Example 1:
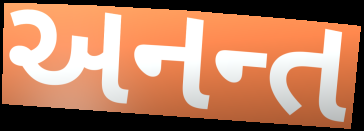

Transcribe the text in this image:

અનન્ત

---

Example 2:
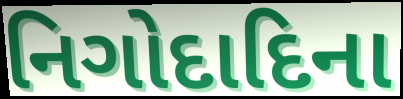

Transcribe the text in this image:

નિગોદાદિના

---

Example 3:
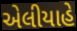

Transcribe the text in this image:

એલીયાહે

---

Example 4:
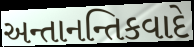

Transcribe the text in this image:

અન્તાનન્તિકવાદે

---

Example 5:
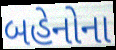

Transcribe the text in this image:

બહેનોના